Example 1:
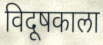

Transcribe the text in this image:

विदूषकाला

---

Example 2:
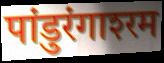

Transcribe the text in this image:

पांडुरंगाश्रम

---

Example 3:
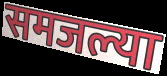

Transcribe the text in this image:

समजल्या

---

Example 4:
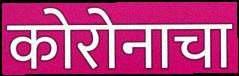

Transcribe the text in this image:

कोरोनाचा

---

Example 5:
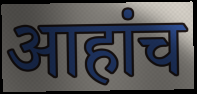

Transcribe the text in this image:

आहांच